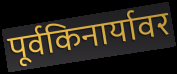
पूर्वकिनार्यावर